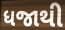
ધજાથી